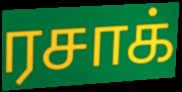
ரசாக்